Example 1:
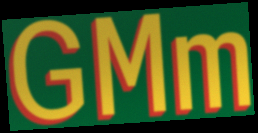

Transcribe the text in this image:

GMm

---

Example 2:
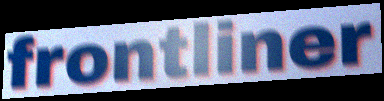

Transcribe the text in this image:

frontliner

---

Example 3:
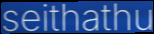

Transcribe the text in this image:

seithathu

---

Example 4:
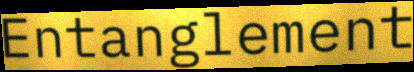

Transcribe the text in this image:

Entanglement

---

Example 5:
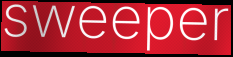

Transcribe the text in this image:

sweeper